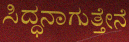
ಸಿದ್ಧನಾಗುತ್ತೇನೆ